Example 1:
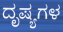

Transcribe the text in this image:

ದೃಷ್ಯಗಳ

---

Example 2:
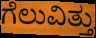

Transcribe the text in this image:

ಗೆಲುವಿತ್ತು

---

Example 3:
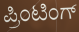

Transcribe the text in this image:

ಪ್ರಿಂಟಿಂಗ್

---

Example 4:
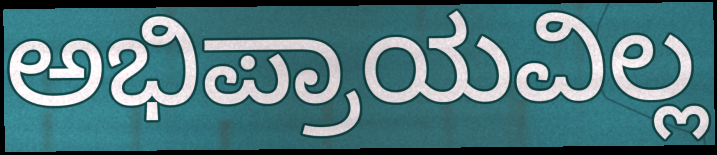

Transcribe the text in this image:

ಅಭಿಪ್ರಾಯವಿಲ್ಲ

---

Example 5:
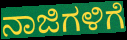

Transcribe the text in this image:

ನಾಜಿಗಳಿಗೆ